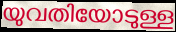
യുവതിയോടുള്ള